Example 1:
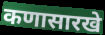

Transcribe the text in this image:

कणासारखे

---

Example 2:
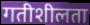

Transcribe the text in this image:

गतीशीलता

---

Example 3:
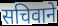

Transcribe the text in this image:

सचिवाने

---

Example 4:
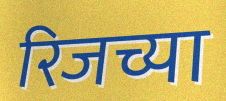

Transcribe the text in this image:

रिजच्या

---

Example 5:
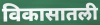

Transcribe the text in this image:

विकासातली